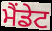
ਮੈਂਡੇਟ